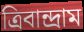
ত্রিবান্দ্রাম